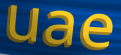
uae